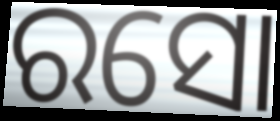
ରସୋ